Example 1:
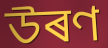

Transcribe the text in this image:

উৰণ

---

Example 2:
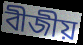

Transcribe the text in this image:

বীজীয়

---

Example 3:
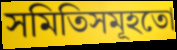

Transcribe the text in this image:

সমিতিসমূহতো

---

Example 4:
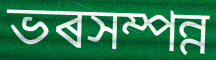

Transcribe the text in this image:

ভৰসম্পন্ন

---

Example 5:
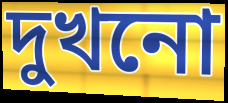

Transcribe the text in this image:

দুখনো